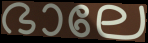
ഭാലേ